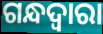
ଗନ୍ଧଦ୍ୱାରା